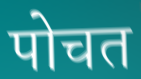
पोचत